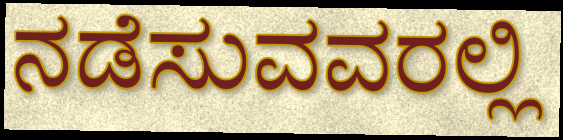
ನಡೆಸುವವರಲ್ಲಿ